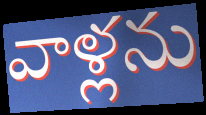
వాళ్లను